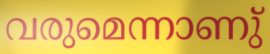
വരുമെന്നാണു്